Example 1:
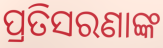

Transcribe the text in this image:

ପ୍ରତିସରଣାଙ୍କ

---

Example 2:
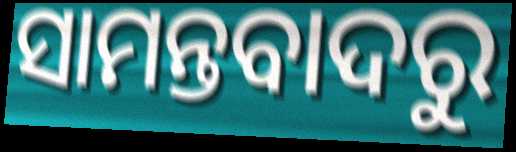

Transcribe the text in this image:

ସାମନ୍ତବାଦରୁ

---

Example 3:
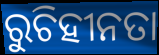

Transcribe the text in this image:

ରୁଚିହୀନତା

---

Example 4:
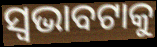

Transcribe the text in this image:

ସ୍ଵଭାବଟାକୁ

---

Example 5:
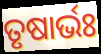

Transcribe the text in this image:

ତୃଷାର୍ଭଃ